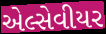
એલ્સેવીયર